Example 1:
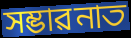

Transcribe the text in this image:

সম্ভাৱনাত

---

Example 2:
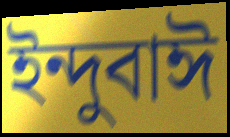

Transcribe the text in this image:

ইন্দুবাঈ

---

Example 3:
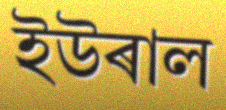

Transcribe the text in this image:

ইউৰাল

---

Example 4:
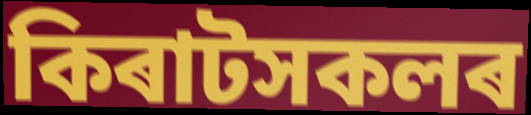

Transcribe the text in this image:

কিৰাটসকলৰ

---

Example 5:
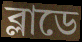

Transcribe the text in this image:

ব্লাডে